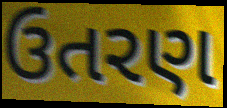
ઉતરણ